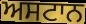
ਅਸਟਾਨ